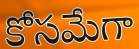
కోసమేగా